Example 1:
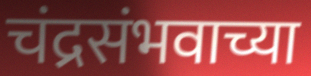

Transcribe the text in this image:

चंद्रसंभवाच्या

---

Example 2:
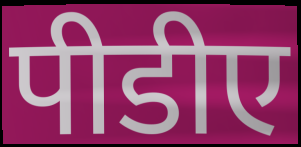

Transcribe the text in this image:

पीडीए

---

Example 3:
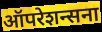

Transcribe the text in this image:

ऑपरेशन्सना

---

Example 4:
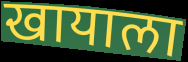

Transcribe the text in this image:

खायाला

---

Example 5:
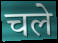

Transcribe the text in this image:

चले